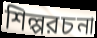
শিল্পরচনা